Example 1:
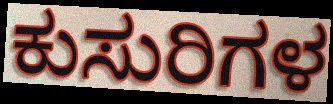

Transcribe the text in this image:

ಕುಸುರಿಗಳ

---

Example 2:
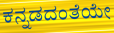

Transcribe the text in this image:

ಕನ್ನಡದಂತೆಯೇ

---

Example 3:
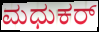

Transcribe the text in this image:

ಮಧುಕರ್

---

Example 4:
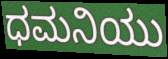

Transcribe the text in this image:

ಧಮನಿಯು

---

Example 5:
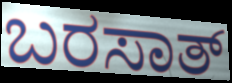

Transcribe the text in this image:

ಬರಸಾತ್